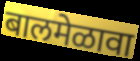
बालमेळावा